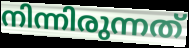
നിന്നിരുന്നത്